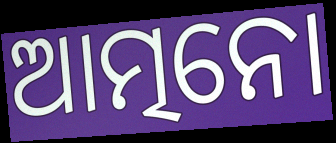
ଆତ୍ମନୋ